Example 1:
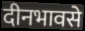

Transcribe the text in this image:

दीनभावसे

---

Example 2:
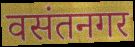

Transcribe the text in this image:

वसंतनगर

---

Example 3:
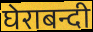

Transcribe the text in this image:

घेराबन्दी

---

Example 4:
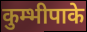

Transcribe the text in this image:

कुम्भीपाके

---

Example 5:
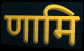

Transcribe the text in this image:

णामि